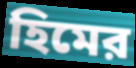
হিমের